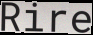
Rire